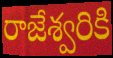
రాజేశ్వరికి